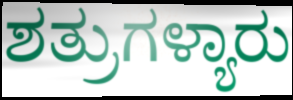
ಶತ್ರುಗಳ್ಯಾರು